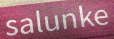
salunke